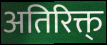
अतिरिक्त्